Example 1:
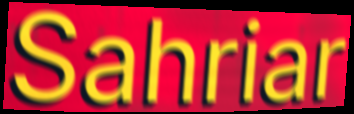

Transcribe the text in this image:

Sahriar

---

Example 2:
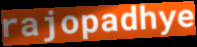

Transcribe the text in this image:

rajopadhye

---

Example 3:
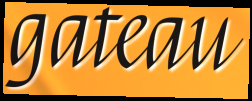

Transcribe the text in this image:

gateau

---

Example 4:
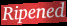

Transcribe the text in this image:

Ripened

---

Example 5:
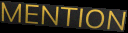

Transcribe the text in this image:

MENTION